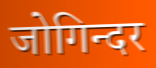
जोगिन्दर